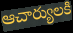
ఆచార్యులకి